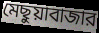
মেছুয়াবাজার